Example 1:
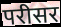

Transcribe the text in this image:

परीसर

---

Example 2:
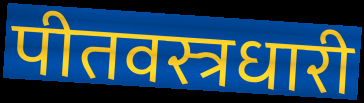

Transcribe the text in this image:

पीतवस्त्रधारी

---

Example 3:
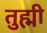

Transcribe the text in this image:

तुह्मी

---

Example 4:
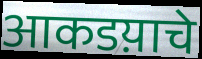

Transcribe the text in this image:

आकडय़ाचे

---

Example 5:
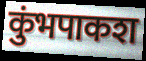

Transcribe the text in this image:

कुंभपाकश